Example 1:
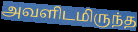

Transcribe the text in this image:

அவளிடமிருந்த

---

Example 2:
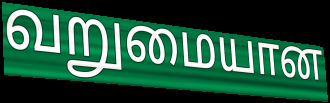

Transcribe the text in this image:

வறுமையான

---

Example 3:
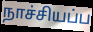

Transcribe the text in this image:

நாச்சியப்ப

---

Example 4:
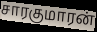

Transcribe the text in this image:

சாரகுமாரன்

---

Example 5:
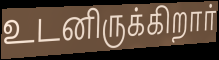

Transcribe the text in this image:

உடனிருக்கிறார்